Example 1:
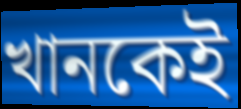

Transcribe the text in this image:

খানকেই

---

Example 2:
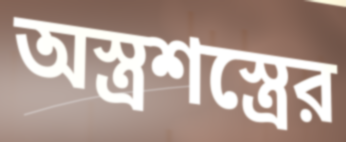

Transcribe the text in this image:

অস্ত্রশস্ত্রের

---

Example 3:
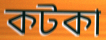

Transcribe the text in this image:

কটকা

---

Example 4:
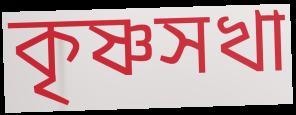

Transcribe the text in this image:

কৃষ্ণসখা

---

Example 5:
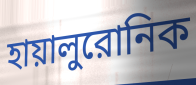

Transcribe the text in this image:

হায়ালুরোনিক